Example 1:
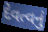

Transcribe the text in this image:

દેવત્વનું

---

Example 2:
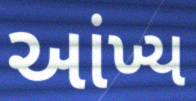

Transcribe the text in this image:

આંખ્ય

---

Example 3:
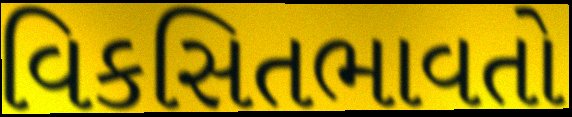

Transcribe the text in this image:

વિકસિતભાવતો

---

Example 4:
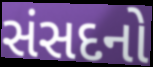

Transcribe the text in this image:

સંસદનો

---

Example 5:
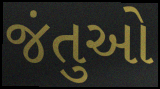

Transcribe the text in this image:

જંતુઓ